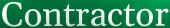
Contractor